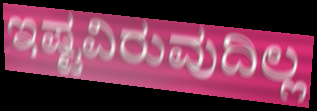
ಇಷ್ಟವಿರುವುದಿಲ್ಲ